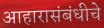
आहारासंबंधीचे